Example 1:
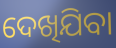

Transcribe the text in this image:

ଦେଖିଯିବା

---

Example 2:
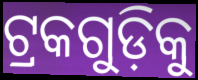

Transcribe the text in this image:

ଟ୍ରକଗୁଡ଼ିକୁ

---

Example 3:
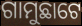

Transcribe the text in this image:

ଗାମୁଛାଟେ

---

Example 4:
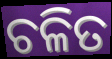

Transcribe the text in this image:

ଚଳିତ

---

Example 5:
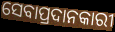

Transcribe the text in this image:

ସେବାପ୍ରଦାନକାରୀ